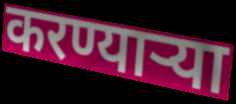
करण्यार्‍या